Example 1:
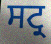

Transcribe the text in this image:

ਸਟ੍ਰ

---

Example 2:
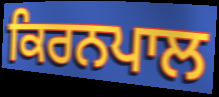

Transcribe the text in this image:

ਕਿਰਨਪਾਲ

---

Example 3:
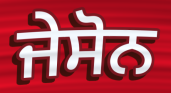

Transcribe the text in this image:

ਜੇਸੋਨ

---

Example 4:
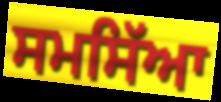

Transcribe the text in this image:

ਸਮਸਿੱਆ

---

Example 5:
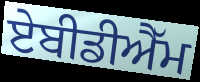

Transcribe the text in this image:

ਏਬੀਡੀਐੱਮ